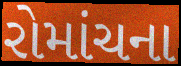
રોમાંચના